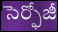
సెర్ఫోజీ